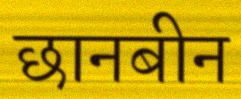
छानबीन